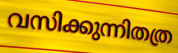
വസിക്കുന്നിതത്ര